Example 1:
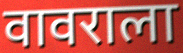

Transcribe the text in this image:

वावराला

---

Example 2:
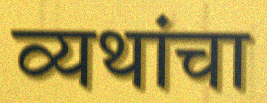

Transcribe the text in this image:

व्यथांचा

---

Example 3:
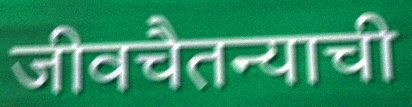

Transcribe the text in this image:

जीवचैतन्याची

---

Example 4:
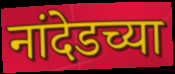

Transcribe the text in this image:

नांदेडच्या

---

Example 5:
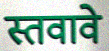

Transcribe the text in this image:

स्तवावे